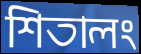
শিতালং